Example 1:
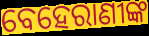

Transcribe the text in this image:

ବେହେରାଣୀଙ୍କ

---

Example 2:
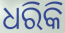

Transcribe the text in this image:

ଧରିକି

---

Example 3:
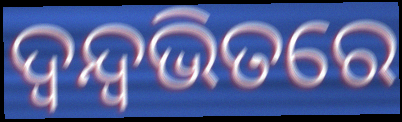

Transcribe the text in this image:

ଦ୍ୱନ୍ଦ୍ୱଭିତରେ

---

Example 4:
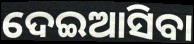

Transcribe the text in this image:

ଦେଇଆସିବା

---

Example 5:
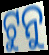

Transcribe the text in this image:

ଟୁନୁ